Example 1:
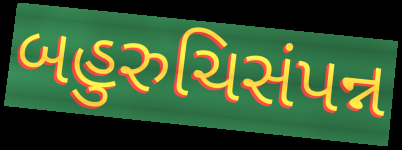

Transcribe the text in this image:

બહુરુચિસંપન્ન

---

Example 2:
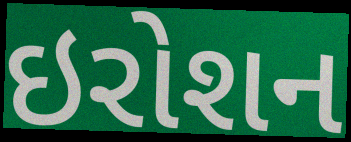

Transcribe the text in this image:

ઇરોશન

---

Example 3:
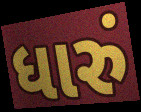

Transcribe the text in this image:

ધારું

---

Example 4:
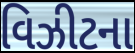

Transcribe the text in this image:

વિઝીટના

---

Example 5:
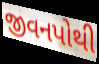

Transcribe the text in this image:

જીવનપોથી